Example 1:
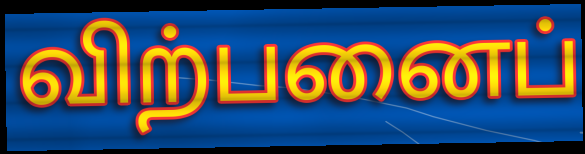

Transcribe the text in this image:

விற்பனைப்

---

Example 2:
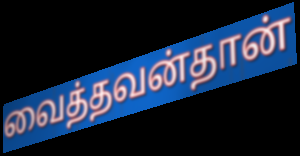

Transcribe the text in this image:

வைத்தவன்தான்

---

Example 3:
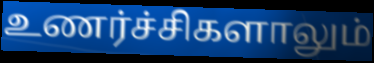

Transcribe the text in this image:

உணர்ச்சிகளாலும்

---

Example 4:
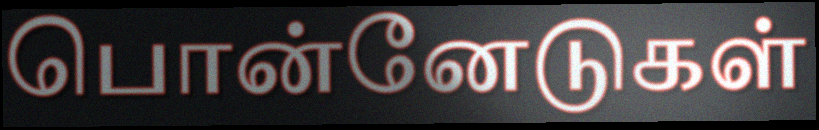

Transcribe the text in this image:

பொன்னேடுகள்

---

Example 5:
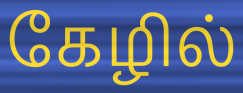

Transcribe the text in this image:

கேழில்